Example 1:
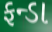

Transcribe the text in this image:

ફન્ડા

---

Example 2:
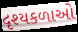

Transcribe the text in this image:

દૃશ્યકળાઓ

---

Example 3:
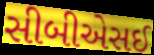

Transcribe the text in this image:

સીબીએસઈ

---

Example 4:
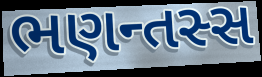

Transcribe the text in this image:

ભણન્તસ્સ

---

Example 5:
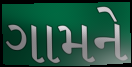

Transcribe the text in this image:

ગામને